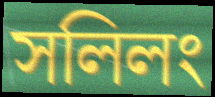
সলিলং